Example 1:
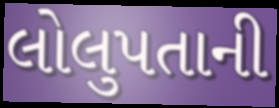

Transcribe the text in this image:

લોલુપતાની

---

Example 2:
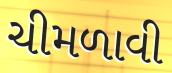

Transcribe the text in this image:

ચીમળાવી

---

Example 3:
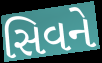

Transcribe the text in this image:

સિવને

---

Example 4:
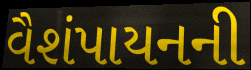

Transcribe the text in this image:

વૈશંપાયનની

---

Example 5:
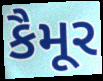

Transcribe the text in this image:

કૈમૂર